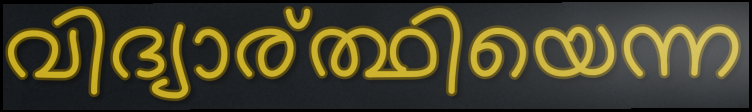
വിദ്യാര്ത്ഥിയെന്ന